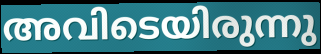
അവിടെയിരുന്നു